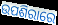
ଉପଶିରାରେ